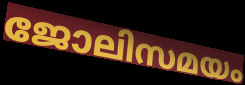
ജോലിസമയം